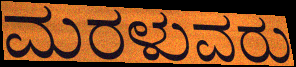
ಮರಳುವರು